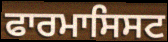
ਫਾਰਮਾਸਿਸਟ